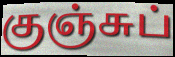
குஞ்சுப்